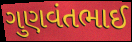
ગુણવંતભાઈ